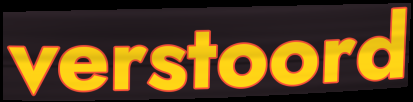
verstoord